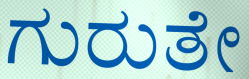
ಗುರುತೇ